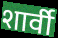
शार्वी